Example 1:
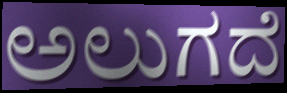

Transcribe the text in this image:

ಅಲುಗದೆ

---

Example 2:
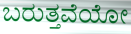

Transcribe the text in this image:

ಬರುತ್ತವೆಯೋ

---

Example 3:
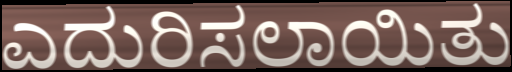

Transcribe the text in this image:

ಎದುರಿಸಲಾಯಿತು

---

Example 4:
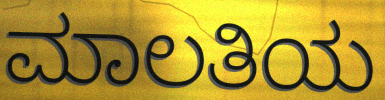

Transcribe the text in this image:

ಮಾಲತಿಯ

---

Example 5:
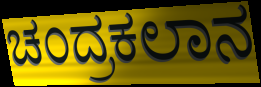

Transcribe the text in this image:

ಚಂದ್ರಕಲಾನ